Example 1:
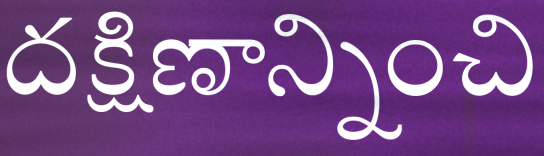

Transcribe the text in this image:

దక్షిణాన్నించి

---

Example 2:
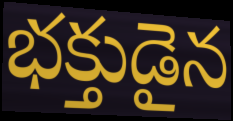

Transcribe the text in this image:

భక్తుడైన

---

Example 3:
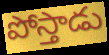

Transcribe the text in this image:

పోస్తాడు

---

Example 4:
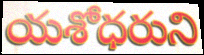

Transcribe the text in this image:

యశోధరుని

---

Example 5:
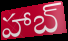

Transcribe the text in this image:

హాబ్